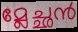
മ്ലേച്ഛൻ